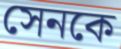
সেনকে